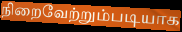
நிறைவேற்றும்படியாக